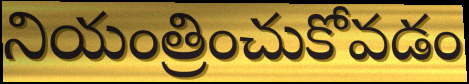
నియంత్రించుకోవడం